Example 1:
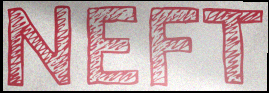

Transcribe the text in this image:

NEFT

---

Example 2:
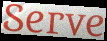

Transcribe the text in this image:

Serve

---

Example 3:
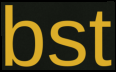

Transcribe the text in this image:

bst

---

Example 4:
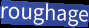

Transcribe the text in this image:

roughage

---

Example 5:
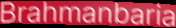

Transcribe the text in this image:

Brahmanbaria